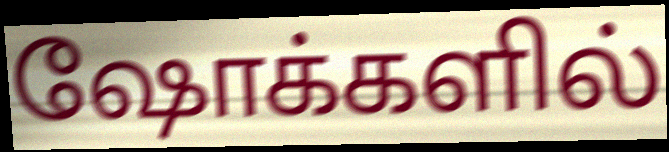
ஷோக்களில்